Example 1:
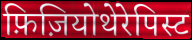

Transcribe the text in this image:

फ़िज़ियोथेरेपिस्ट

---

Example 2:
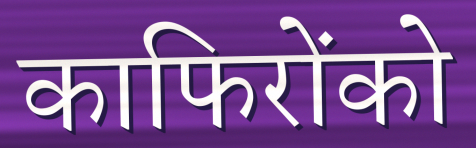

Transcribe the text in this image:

काफिरोंको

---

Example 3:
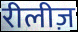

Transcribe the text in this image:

रीलीज़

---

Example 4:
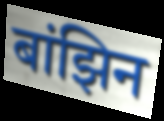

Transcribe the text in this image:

बांझिन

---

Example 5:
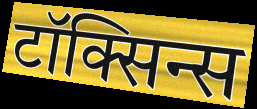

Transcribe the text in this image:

टॉक्सिन्स